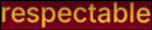
respectable